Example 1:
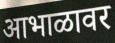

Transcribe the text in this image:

आभाळावर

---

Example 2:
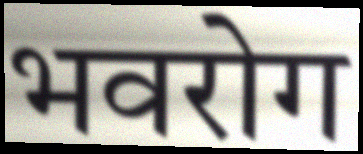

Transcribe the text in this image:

भवरोग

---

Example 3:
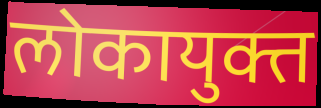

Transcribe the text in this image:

लोकायुक्त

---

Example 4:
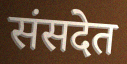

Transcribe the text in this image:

संसदेत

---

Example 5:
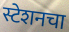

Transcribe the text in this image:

स्टेशनचा